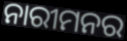
ନାରୀମନର